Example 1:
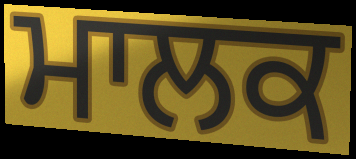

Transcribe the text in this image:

ਮਾਲਕ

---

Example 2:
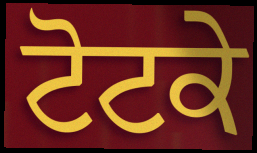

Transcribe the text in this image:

ਟੋਟਕੇ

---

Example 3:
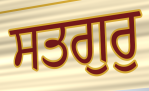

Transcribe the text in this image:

ਸਤਗੁਰੁ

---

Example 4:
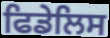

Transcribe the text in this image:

ਫਿਡੇਲਿਸ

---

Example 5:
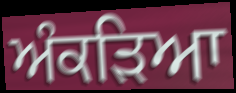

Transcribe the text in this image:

ਅੰਕੜਿਆ